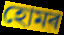
হোমৰ